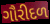
ગૌરીદળ